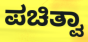
ಪಚಿತ್ವಾ